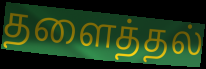
தளைத்தல்